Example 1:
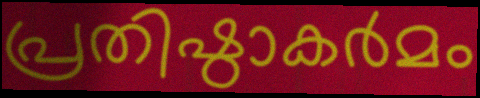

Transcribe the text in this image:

പ്രതിഷ്ഠാകർമം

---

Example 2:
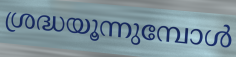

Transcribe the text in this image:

ശ്രദ്ധയൂന്നുമ്പോൾ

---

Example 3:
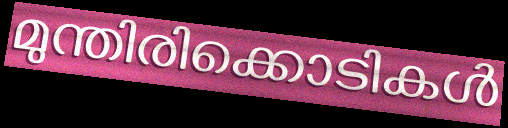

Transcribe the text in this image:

മുന്തിരിക്കൊടികൾ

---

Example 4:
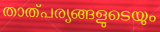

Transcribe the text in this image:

താത്പര്യങ്ങളുടെയും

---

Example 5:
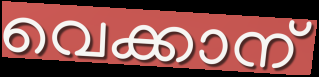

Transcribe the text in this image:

വെക്കാന്